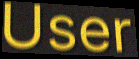
User